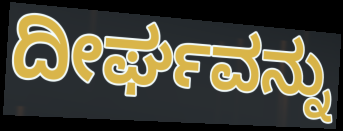
ದೀರ್ಘವನ್ನು